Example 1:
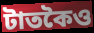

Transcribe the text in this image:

টাতকৈও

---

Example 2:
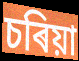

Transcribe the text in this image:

চৰিয়া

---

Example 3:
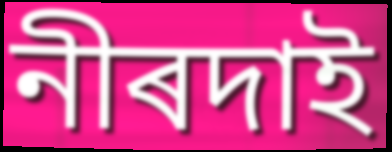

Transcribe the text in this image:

নীৰদাই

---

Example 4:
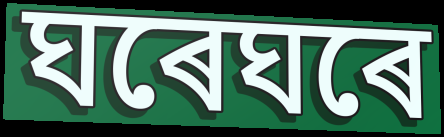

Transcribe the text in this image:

ঘৰেঘৰে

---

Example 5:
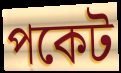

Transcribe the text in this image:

পকেট